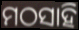
ମଠସାହି